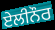
ਏਲੀਨੌਰ